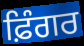
ਫ਼ਿੰਗਰ